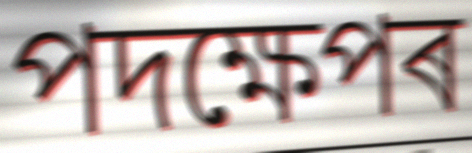
পদক্ষেপৰ